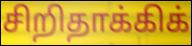
சிறிதாக்கிக்